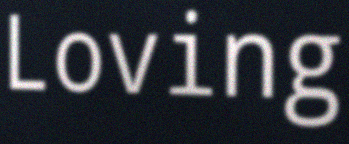
Loving